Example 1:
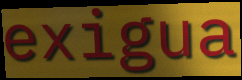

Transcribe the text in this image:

exigua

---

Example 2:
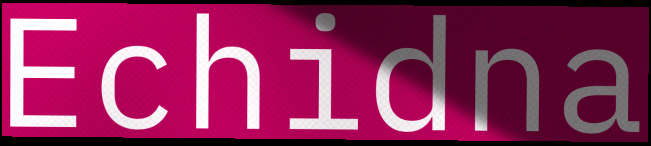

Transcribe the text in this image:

Echidna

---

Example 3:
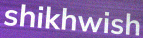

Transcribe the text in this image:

shikhwish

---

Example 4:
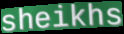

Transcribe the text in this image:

sheikhs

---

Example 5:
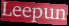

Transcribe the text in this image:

Leepun